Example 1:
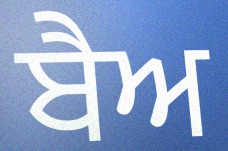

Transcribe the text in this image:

ਬੈਅ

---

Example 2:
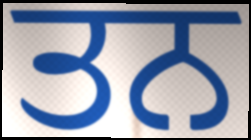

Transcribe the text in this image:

ਤਨ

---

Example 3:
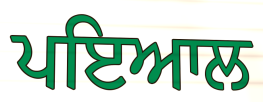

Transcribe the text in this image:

ਪਇਆਲ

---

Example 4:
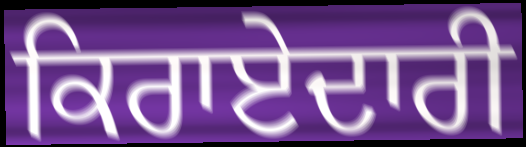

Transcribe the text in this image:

ਕਿਰਾਏਦਾਰੀ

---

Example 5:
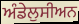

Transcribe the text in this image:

ਅੰਡੇਲੁਸੀਅਨ